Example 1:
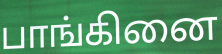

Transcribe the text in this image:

பாங்கினை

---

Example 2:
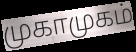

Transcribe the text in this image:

முகாமுகம்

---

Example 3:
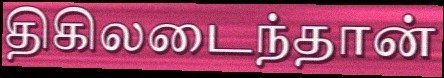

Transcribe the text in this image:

திகிலடைந்தான்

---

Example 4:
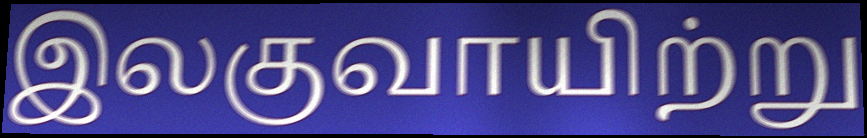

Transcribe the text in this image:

இலகுவாயிற்று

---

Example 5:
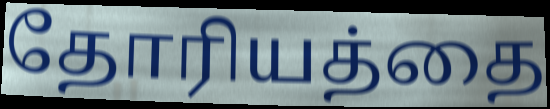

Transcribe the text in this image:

தோரியத்தை